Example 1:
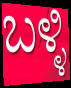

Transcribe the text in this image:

ಬಳ್ಳಿ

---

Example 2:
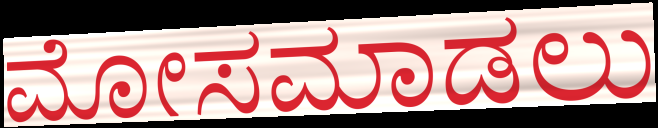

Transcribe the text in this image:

ಮೋಸಮಾಡಲು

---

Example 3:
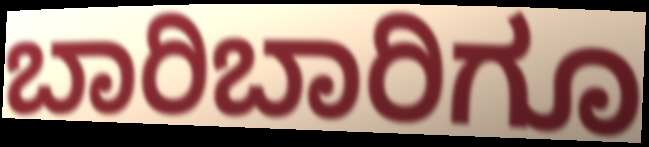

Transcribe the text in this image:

ಬಾರಿಬಾರಿಗೂ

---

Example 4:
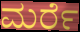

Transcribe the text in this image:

ಮರ್ರೆ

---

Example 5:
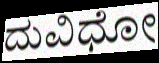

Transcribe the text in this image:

ದುವಿಧೋ